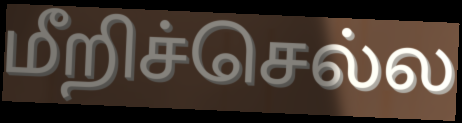
மீறிச்செல்ல